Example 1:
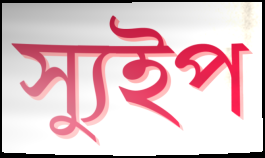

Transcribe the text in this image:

স্যুইপ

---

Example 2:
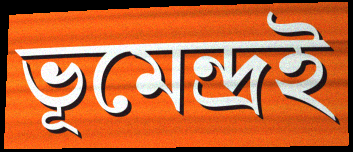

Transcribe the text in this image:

ভূমেন্দ্রই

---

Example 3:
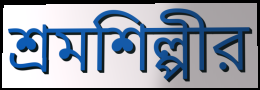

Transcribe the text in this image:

শ্রমশিল্পীর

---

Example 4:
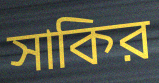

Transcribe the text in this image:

সাকির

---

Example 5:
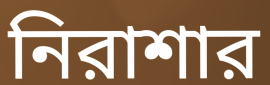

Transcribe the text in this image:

নিরাশার